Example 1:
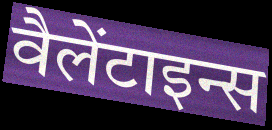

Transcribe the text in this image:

वैलेंटाइन्स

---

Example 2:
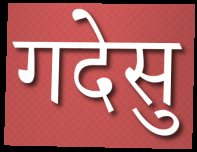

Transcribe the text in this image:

गदेसु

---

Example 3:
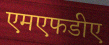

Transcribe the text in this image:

एमएफडीए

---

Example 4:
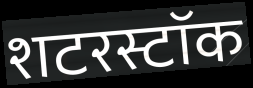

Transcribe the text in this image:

शटरस्‍टॉक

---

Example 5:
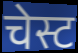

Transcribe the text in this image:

चेस्‍ट